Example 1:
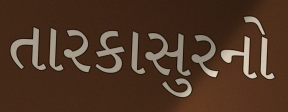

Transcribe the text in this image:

તારકાસુરનો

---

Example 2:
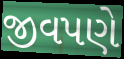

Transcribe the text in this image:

જીવપણે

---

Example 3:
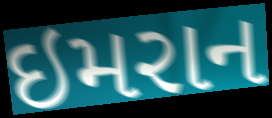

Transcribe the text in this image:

ઇમરાન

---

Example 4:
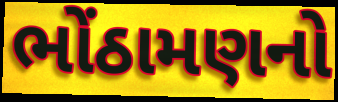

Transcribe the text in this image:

ભોંઠામણનો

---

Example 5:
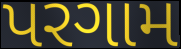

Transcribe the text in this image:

પરગામ